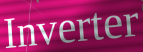
Inverter